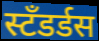
स्टँडर्डस